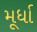
મૂર્ધા